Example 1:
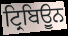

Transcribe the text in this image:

ਟ੍ਰਿਬਿਉੂਨ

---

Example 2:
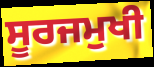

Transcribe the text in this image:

ਸੂਰਜਮੁਖੀ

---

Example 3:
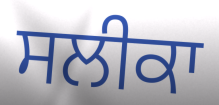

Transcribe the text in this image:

ਸਲੀਕਾ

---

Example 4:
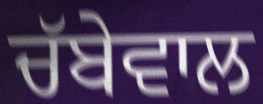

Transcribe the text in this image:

ਚੱਬੇਵਾਲ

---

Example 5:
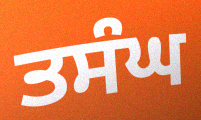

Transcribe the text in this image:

ਤਸੰਘ